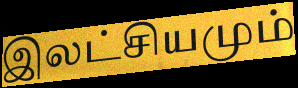
இலட்சியமும்